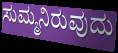
ಸುಮ್ಮನಿರುವುದು